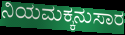
ನಿಯಮಕ್ಕನುಸಾರ